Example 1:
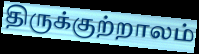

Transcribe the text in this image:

திருக்குற்றாலம்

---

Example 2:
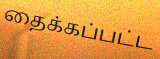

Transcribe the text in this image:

தைக்கப்பட்ட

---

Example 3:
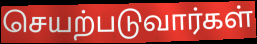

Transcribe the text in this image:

செயற்படுவார்கள்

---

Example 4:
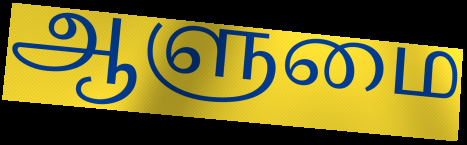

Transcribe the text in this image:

ஆளுமை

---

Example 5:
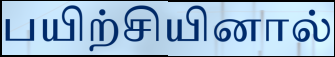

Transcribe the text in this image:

பயிற்சியினால்